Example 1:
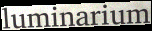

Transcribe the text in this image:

luminarium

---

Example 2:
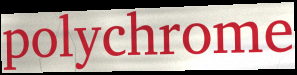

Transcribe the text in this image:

polychrome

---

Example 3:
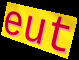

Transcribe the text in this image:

eut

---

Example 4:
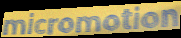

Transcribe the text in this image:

micromotion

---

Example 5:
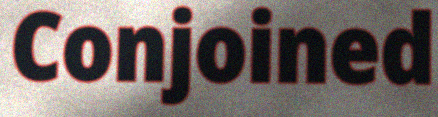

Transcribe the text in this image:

Conjoined